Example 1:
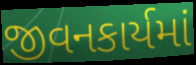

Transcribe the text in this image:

જીવનકાર્યમાં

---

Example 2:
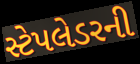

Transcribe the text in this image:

સ્ટેપલેડરની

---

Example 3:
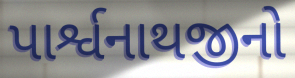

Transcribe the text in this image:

પાર્શ્વનાથજીનો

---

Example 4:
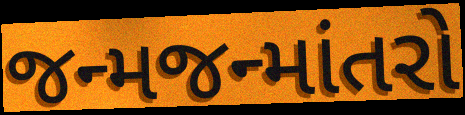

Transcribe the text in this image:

જન્મજન્માંતરો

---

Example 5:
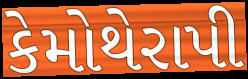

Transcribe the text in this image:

કેમોથેરાપી